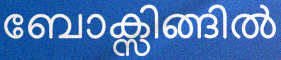
ബോക്സിങ്ങിൽ